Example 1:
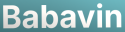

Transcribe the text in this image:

Babavin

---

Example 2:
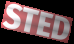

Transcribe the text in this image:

STED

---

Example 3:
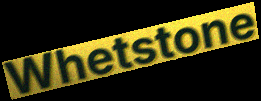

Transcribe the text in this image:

Whetstone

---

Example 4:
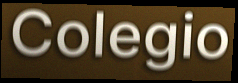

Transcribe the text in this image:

Colegio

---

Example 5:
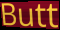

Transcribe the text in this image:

Butt